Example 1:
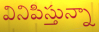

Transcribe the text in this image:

వినిపిస్తున్నా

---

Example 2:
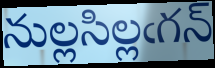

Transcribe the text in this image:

నుల్లసిల్లఁగన్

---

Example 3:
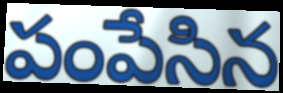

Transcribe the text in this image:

పంపేసిన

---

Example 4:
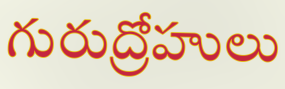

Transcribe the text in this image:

గురుద్రోహులు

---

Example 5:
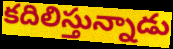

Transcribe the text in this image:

కదిలిస్తున్నాడు